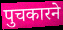
पुचकारने